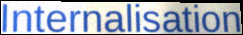
Internalisation